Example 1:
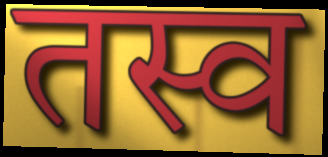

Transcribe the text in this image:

तस्व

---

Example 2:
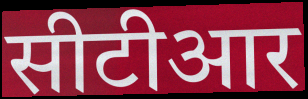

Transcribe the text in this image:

सीटीआर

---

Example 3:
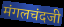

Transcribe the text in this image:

मंगलचंदजी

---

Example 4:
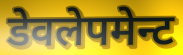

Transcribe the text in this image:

डेवलेपमेन्ट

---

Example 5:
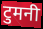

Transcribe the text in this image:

टुमनी